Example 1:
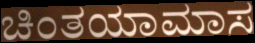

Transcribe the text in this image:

ಚಿಂತಯಾಮಾಸ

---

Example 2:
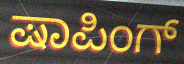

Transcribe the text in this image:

ಷಾಪಿಂಗ್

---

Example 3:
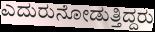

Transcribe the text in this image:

ಎದುರುನೋಡುತ್ತಿದ್ದರು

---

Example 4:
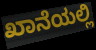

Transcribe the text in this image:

ಖಾನೆಯಲ್ಲಿ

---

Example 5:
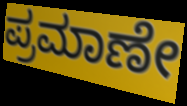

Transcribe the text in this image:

ಪ್ರಮಾಣೇ